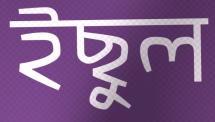
ইছুল